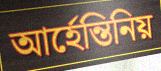
আর্হেন্তিনিয়